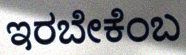
ಇರಬೇಕೆಂಬ